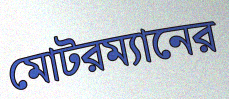
মোটরম্যানের